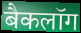
बैकलॉग